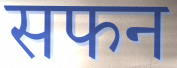
सफन